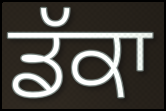
ਡੱਕਾ